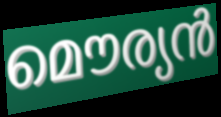
മൌര്യൻ